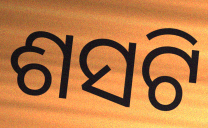
ଶସଟି